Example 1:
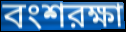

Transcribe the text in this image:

বংশরক্ষা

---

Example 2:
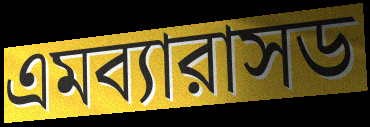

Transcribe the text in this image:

এমব্যারাসড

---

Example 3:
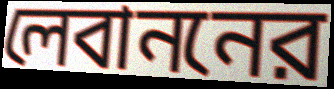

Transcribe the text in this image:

লেবাননের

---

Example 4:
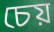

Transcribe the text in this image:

চেয়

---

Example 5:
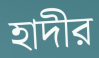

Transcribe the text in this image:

হাদীর